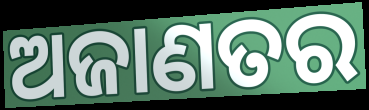
ଅଜାଣତର